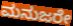
ಮನುಜರೇ